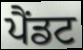
ਪੈਂਡਟ